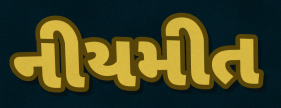
નીયમીત